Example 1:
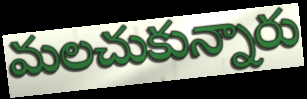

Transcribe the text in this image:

మలచుకున్నారు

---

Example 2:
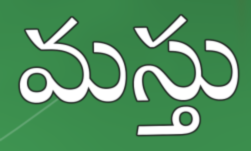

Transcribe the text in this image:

మస్తు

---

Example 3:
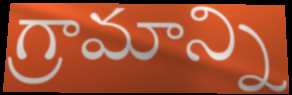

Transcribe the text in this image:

గ్రామాన్ని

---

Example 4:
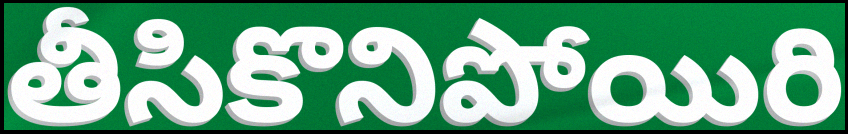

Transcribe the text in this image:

తీసికొనిపోయిరి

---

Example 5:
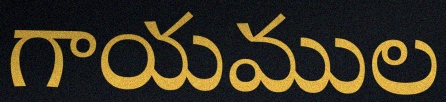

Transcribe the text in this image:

గాయముల